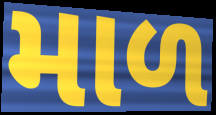
માળ